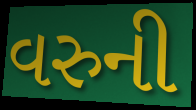
વરુની